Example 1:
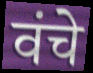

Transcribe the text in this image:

वंचे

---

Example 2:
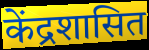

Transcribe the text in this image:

केंद्रशासित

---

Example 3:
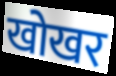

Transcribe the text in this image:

खोखर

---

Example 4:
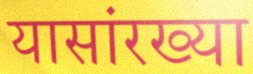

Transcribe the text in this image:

यासांरख्या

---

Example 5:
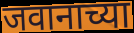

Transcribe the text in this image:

जवानाच्या